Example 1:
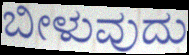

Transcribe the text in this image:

ಬೀಳುವುದು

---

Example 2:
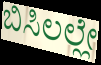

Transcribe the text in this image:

ಬಿಸಿಲಲ್ಲೇ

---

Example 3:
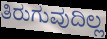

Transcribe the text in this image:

ತಿರುಗುವುದಿಲ್ಲ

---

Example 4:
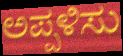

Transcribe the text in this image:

ಅಪ್ಪಳಿಸು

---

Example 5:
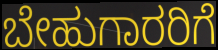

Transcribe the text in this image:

ಬೇಹುಗಾರರಿಗೆ